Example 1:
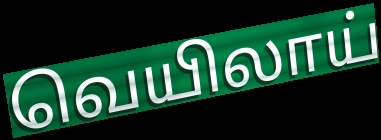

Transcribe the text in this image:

வெயிலாய்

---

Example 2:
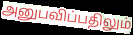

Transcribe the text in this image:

அனுபவிப்பதிலும்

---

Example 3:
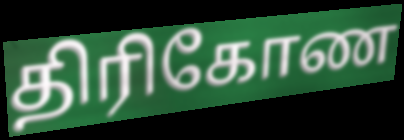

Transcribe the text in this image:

திரிகோண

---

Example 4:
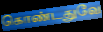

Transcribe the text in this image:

கொண்டதுவே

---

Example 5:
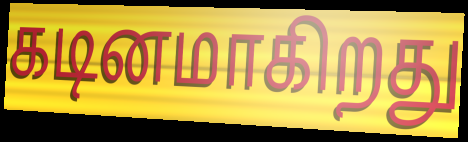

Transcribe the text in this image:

கடினமாகிறது